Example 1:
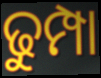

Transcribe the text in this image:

ଢୁମ୍ପା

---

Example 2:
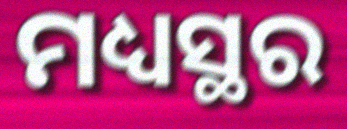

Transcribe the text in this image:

ମଧ୍ୟସ୍ଥର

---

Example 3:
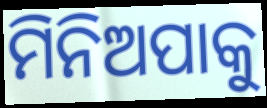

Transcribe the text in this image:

ମିନିଅପାକୁ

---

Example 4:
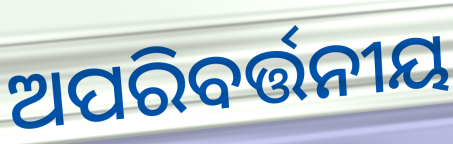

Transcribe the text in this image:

ଅପରିବର୍ତ୍ତନୀୟ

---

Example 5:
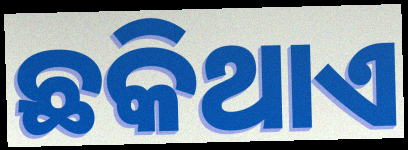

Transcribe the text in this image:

ଛକିଥାଏ